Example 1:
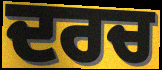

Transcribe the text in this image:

ਦਰਚ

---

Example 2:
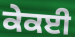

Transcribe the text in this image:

ਕੇਕਈ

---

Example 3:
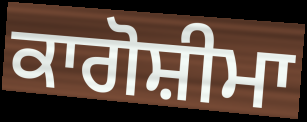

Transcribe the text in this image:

ਕਾਗੋਸ਼ੀਮਾ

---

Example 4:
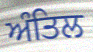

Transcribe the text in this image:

ਅੰਤਿਲ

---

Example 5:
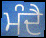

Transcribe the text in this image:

ਮੰਦੈ